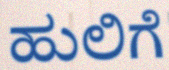
ಹುಲಿಗೆ